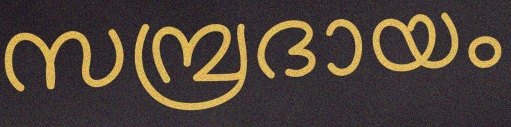
സമ്പ്രദായം